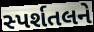
સ્પર્શતલને